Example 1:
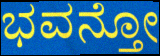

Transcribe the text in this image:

ಭವನ್ತೋ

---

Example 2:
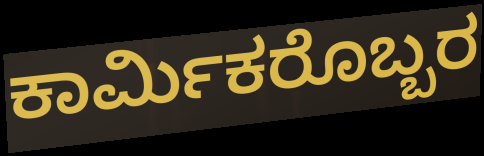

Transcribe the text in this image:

ಕಾರ್ಮಿಕರೊಬ್ಬರ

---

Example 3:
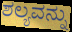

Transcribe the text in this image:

ಶಲ್ಯವನ್ನು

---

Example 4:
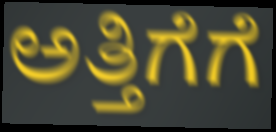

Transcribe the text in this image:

ಅತ್ತಿಗೆಗೆ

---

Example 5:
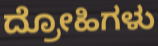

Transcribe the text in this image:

ದ್ರೋಹಿಗಳು